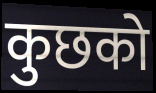
कुछको